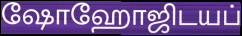
ஷோஹோஜிடயப்